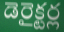
డెరైక్టర్ల